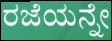
ರಜೆಯನ್ನೇ